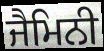
ਜੈਮਿਨੀ